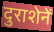
दुराशेनें